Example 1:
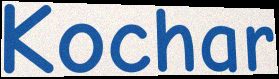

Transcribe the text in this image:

Kochar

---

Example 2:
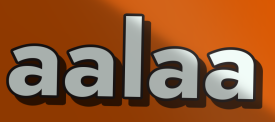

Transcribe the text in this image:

aalaa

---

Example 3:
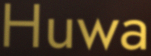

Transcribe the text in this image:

Huwa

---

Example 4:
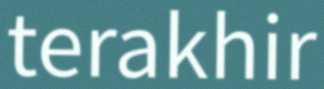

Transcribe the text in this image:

terakhir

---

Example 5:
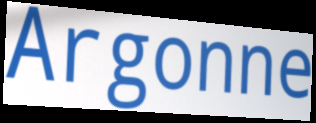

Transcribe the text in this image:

Argonne